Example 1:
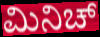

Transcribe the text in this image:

ಮಿನಿಚ್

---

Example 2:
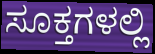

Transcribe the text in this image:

ಸೂಕ್ತಗಳಲ್ಲಿ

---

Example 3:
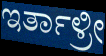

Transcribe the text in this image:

ಇರ್ತಾಳ್ರೀ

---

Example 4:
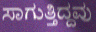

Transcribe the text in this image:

ಸಾಗುತ್ತಿದ್ದವು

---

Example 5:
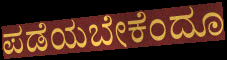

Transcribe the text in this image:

ಪಡೆಯಬೇಕೆಂದೂ